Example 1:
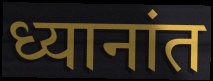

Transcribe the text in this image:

ध्यानांत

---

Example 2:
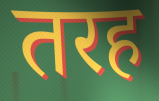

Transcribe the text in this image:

तरह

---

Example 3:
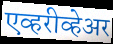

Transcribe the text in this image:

एव्हरीव्हेअर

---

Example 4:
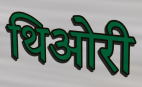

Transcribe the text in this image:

थिओरी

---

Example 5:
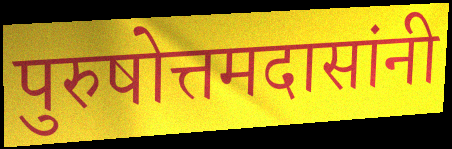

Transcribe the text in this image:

पुरुषोत्तमदासांनी